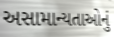
અસામાન્યતાઓનું